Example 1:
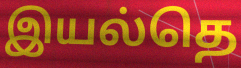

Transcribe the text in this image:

இயல்தெ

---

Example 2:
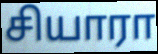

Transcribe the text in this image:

சியாரா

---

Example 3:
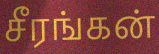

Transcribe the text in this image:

சீரங்கன்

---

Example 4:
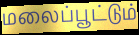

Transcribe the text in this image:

மலைப்பூட்டும்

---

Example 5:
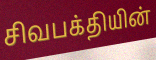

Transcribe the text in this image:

சிவபக்தியின்